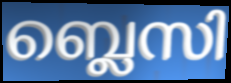
ബ്ലെസി